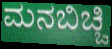
ಮನಬಿಚ್ಚಿ